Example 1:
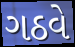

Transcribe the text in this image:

ગઠવે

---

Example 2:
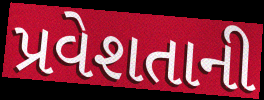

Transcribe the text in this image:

પ્રવેશતાની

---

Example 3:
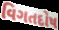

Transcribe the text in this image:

વિગતદોષ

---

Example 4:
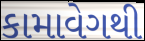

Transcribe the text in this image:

કામાવેગથી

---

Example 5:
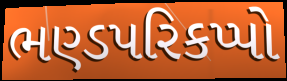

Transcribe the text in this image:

ભણ્ડપરિકપ્પો